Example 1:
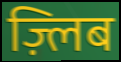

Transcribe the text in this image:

ज़्लिब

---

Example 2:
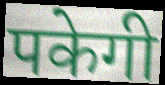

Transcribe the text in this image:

पकेगी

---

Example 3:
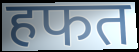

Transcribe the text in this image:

हफत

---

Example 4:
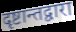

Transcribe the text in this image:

दृष्टान्तद्वारा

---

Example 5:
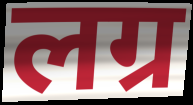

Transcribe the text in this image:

लग्र